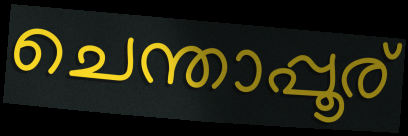
ചെന്താപ്പൂര്